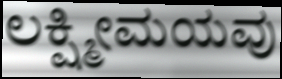
ಲಕ್ಷ್ಮೀಮಯವು